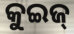
କୁଇଜ୍